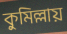
কুমিল্লায়